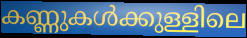
കണ്ണുകൾക്കുള്ളിലെ